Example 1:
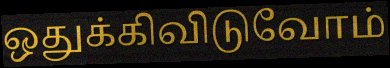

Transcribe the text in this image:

ஒதுக்கிவிடுவோம்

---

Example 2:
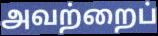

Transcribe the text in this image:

அவற்றைப்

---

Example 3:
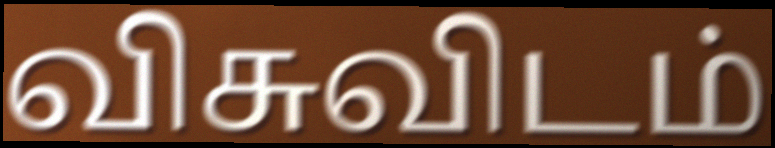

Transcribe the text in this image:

விசுவிடம்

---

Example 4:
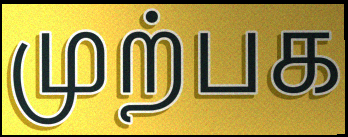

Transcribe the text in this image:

முற்பக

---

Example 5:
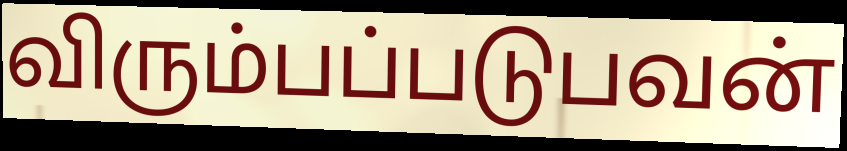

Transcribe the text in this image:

விரும்பப்படுபவன்